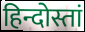
हिन्दोस्तां